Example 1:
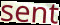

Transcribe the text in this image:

sent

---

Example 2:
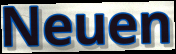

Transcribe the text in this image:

Neuen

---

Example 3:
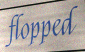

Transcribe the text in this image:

flopped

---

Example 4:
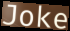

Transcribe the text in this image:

Joke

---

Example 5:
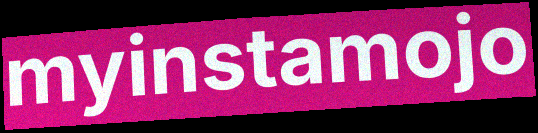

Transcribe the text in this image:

myinstamojo